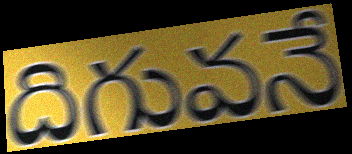
దిగువనే